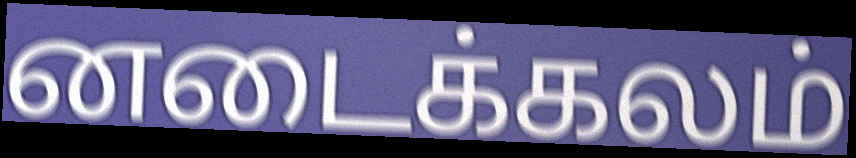
னடைக்கலம்